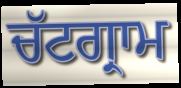
ਚੱਟਗ੍ਰਾਮ